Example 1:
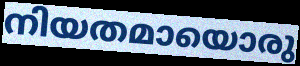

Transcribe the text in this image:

നിയതമായൊരു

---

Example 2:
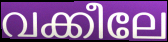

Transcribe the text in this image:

വക്കീലേ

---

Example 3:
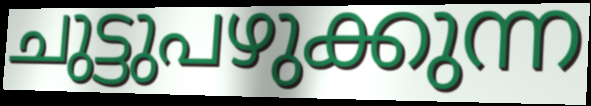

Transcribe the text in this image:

ചുട്ടുപഴുക്കുന്ന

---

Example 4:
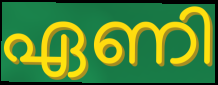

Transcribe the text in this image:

ഏണി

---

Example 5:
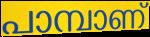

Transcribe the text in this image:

പാമ്പാണ്